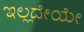
ಇಲ್ಲದೇಯೇ